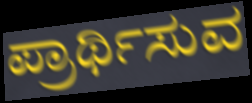
ಪ್ರಾರ್ಥಿಸುವ